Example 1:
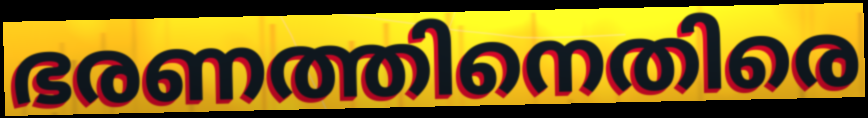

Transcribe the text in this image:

ഭരണത്തിനെതിരെ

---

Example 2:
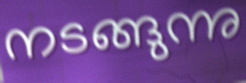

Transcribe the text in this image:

നടങ്ങുന്നു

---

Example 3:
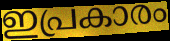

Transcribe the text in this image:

ഇപ്രകാരം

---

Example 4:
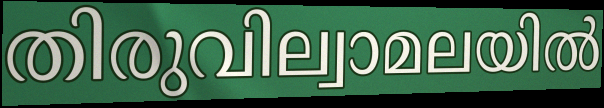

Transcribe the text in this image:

തിരുവില്വാമലയിൽ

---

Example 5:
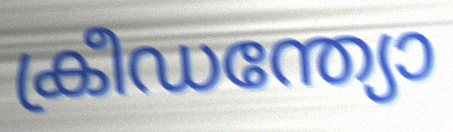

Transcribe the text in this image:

ക്രീഡന്ത്യോ